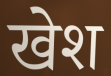
खेश